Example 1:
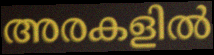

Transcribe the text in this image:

അരകളിൽ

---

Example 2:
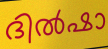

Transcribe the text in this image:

ദിൽഷാ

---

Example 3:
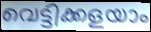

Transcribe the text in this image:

വെട്ടിക്കളയാം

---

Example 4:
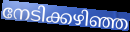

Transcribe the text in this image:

നേടിക്കഴിഞ്ഞ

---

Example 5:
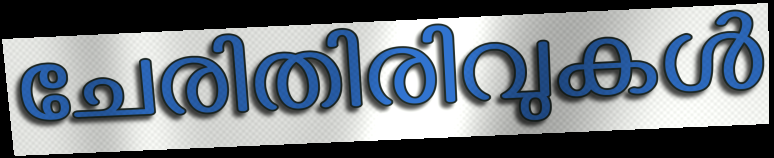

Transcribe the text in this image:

ചേരിതിരിവുകൾ